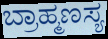
ಬ್ರಾಹ್ಮಣಸ್ಯ